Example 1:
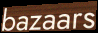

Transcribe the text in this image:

bazaars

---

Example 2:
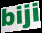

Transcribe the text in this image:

biji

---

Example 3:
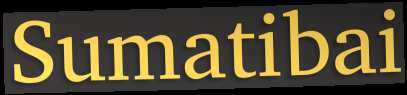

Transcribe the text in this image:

Sumatibai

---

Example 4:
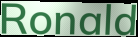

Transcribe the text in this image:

Ronald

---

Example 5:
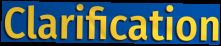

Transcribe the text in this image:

Clarification